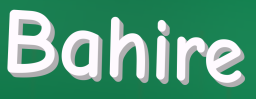
Bahire